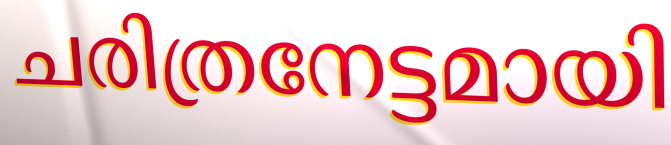
ചരിത്രനേട്ടമായി